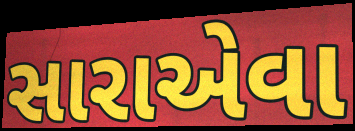
સારાએવા